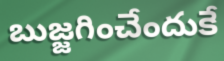
బుజ్జగించేందుకే